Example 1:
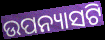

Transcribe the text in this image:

ଉପନ୍ୟାସଟି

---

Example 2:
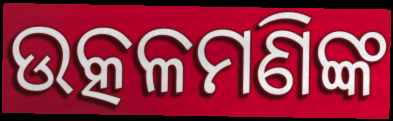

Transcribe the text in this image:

ଉତ୍କଳମଣିଙ୍କ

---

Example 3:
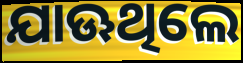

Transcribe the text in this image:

ଯାଊଥିଲେ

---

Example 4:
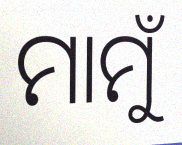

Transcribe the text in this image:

ମାମୁଁ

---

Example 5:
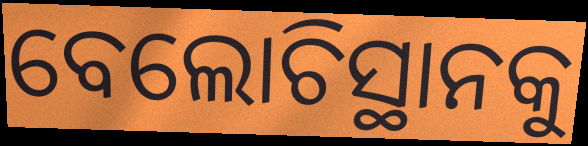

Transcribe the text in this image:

ବେଲୋଚିସ୍ଥାନକୁ